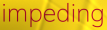
impeding